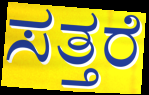
ಸತ್ತರೆ